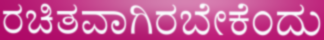
ರಚಿತವಾಗಿರಬೇಕೆಂದು